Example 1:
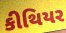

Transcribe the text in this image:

કીથિયર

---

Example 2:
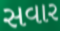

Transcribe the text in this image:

સવાર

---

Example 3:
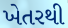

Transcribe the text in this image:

ખેતરથી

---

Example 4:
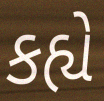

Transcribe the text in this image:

કહ્યે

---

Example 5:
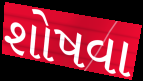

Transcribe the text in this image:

શોષવા